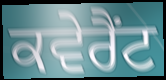
ਕਵੇਰੈਂਟ